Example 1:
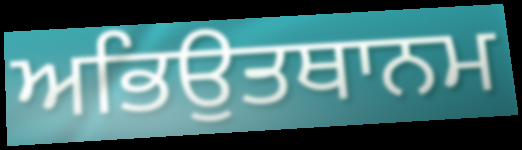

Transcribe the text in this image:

ਅਭਿਉਤਥਾਨਮ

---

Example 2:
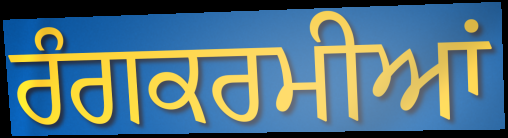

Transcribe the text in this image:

ਰੰਗਕਰਮੀਆਂ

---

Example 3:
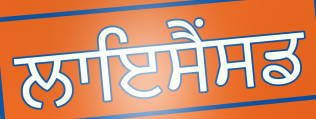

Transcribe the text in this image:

ਲਾਇਸੈਂਸਡ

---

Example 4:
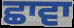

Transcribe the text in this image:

ਛਾਵਾ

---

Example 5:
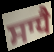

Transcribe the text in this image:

ਸਾਧੈ